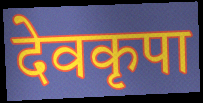
देवकृपा